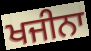
ਖਜੀਨਾ